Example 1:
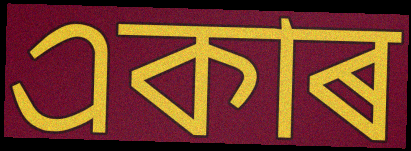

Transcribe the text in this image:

একাৰ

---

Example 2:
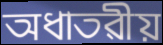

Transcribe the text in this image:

অধাতৱীয়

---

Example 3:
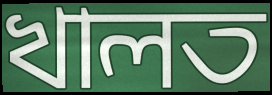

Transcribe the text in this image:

খালত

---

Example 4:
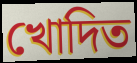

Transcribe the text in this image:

খোদিত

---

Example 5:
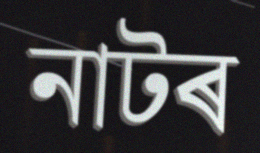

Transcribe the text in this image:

নাটৰ